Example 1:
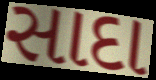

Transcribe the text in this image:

સાદા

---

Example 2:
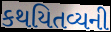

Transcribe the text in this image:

કથયિતવ્યની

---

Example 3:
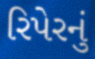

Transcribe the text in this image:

રિપેરનું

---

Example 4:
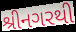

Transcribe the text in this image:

શ્રીનગરથી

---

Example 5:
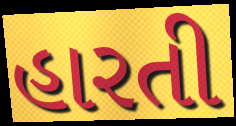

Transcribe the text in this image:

હારતી